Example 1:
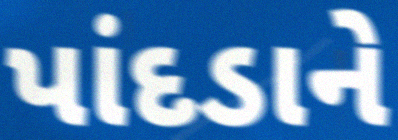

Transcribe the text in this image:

પાંદડાને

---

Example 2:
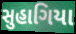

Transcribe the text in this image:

સુહાગિયા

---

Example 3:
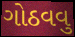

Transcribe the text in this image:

ગોઠવવુ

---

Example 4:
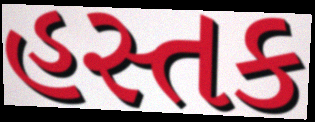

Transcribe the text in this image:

હસ્તક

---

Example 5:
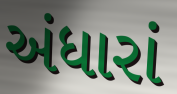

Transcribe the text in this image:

અંધારાં